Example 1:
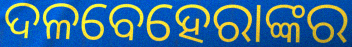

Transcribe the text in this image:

ଦଳବେହେରାଙ୍କର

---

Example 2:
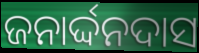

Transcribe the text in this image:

ଜନାର୍ଦ୍ଦନଦାସ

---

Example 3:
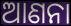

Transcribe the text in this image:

ଆଣନା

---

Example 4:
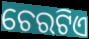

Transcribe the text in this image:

ଚେରଟିଏ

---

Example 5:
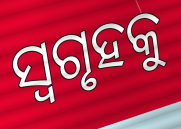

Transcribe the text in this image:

ସ୍ୱଗୃହକୁ